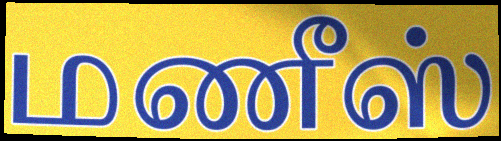
மணீஸ்